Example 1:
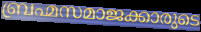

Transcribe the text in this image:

ബ്രഹ്മസമാജക്കാരുടെ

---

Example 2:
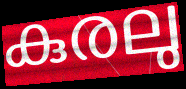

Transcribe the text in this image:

കുരലു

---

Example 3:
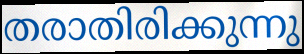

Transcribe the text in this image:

തരാതിരിക്കുന്നു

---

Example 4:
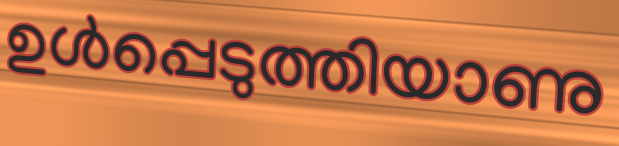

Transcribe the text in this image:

ഉൾപ്പെടുത്തിയാണു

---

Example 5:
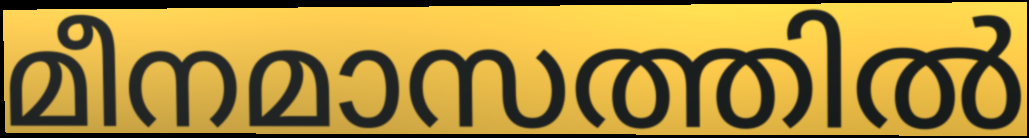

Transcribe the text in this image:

മീനമാസത്തിൽ